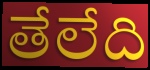
తేలేది